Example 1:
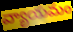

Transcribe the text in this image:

వ్యాయమం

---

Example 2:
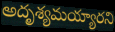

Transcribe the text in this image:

అదృశ్యమయ్యారని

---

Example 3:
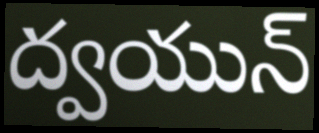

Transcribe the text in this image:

ద్వయున్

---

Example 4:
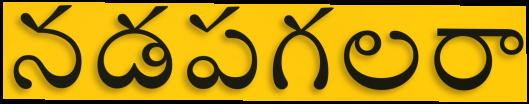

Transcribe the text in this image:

నడపగలరా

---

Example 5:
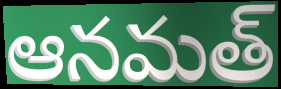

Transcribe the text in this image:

ఆనమత్